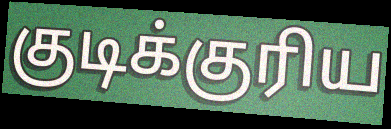
குடிக்குரிய